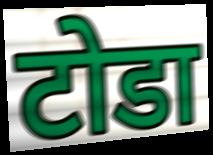
टोडा